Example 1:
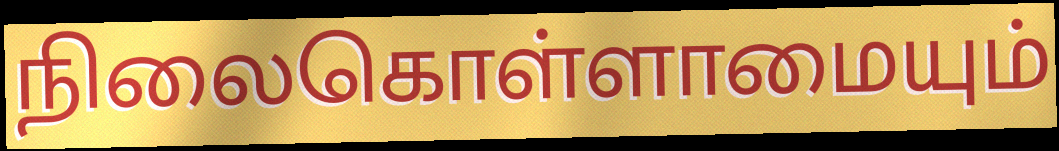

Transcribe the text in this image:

நிலைகொள்ளாமையும்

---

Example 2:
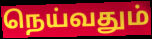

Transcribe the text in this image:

நெய்வதும்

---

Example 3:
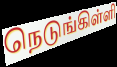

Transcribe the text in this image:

நெடுங்கிள்ளி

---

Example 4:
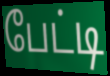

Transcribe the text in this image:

பேட்டி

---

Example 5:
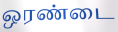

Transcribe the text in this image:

ஒரண்டை